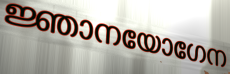
ജ്ഞാനയോഗേന